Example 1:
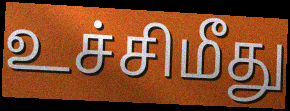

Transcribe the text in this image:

உச்சிமீது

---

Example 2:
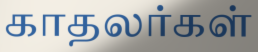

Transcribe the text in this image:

காதலர்கள்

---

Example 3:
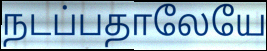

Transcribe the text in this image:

நடப்பதாலேயே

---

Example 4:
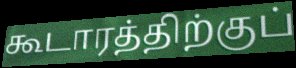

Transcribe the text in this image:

கூடாரத்திற்குப்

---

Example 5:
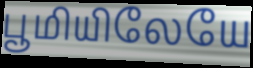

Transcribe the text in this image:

பூமியிலேயே